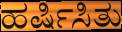
ಹರ್ಷಿಸಿತು